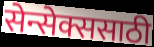
सेन्सेक्ससाठी